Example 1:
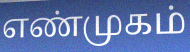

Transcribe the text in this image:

எண்முகம்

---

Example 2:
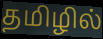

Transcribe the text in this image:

தமிழில்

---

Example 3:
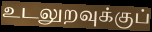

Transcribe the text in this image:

உடலுறவுக்குப்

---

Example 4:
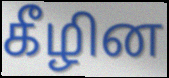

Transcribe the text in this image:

கீழின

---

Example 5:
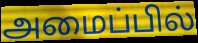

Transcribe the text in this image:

அமைப்பில்